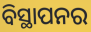
ବିସ୍ଥାପନର